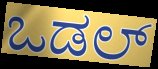
ಒಡಲ್